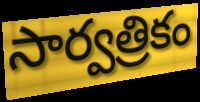
సార్వత్రికం